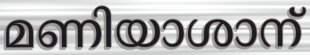
മണിയാശാന്